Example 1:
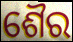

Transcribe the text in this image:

ଶୈର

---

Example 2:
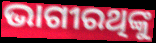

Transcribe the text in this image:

ଭାଗୀରଥିଙ୍କୁ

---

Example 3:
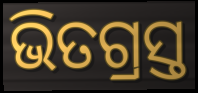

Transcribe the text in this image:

ଭିତଗ୍ରସ୍ତ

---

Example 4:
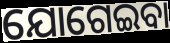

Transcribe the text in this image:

ଯୋଗେଇବା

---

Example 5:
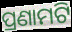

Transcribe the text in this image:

ପ୍ରଣାମଟି